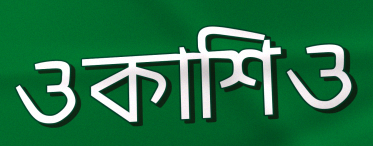
ওকাশিও